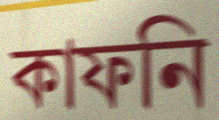
কাফনি